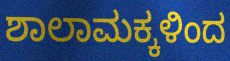
ಶಾಲಾಮಕ್ಕಳಿಂದ